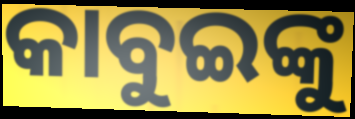
କାବୁଇଙ୍କୁ